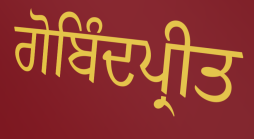
ਗੋਬਿੰਦਪ੍ਰੀਤ